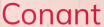
Conant